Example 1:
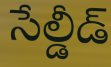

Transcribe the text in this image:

సేల్డీడ్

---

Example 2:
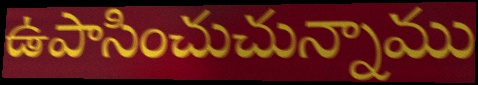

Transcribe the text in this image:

ఉపాసించుచున్నాము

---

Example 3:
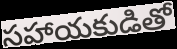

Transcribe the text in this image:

సహాయకుడితో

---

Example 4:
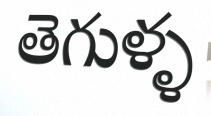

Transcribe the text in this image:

తెగుళ్ళ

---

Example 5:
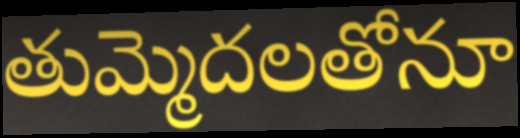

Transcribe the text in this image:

తుమ్మెదలతోనూ